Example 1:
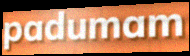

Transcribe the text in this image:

padumam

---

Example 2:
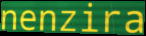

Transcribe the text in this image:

nenzira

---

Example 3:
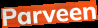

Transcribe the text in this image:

Parveen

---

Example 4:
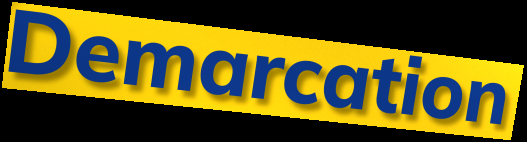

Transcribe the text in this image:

Demarcation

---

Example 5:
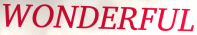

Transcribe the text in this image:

WONDERFUL